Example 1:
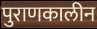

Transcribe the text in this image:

पुराणकालीन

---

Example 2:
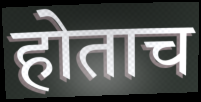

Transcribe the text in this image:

होताच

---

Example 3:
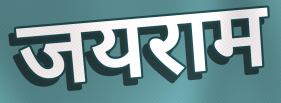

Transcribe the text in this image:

जयराम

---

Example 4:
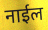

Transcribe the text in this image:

नाईल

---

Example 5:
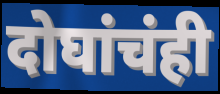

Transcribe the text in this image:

दोघांचंही